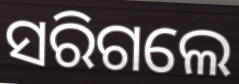
ସରିଗଲେ